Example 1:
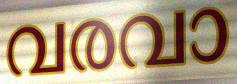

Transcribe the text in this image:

വരവാ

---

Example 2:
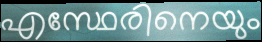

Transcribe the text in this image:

എസ്ഥേരിനെയും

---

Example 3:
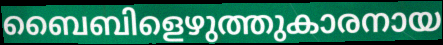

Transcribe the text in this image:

ബൈബിളെഴുത്തുകാരനായ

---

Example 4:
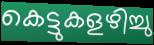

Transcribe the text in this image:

കെട്ടുകളഴിച്ചു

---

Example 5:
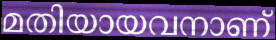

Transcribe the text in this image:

മതിയായവനാണ്